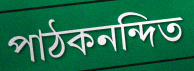
পাঠকনন্দিত